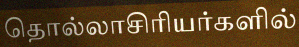
தொல்லாசிரியர்களில்